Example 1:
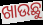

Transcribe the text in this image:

ଖାଉଛୁ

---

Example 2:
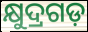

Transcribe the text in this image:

କ୍ଷୁଦ୍ରଗଡ଼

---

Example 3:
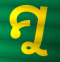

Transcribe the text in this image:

ମୁ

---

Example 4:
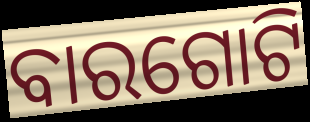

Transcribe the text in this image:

ବାରଗୋଟି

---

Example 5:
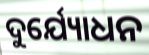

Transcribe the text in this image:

ଦୁର୍ଯ୍ୟୋଧନ